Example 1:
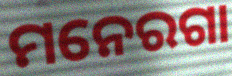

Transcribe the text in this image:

ମନେରଗା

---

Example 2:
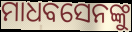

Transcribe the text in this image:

ମାଧବସେନଙ୍କୁ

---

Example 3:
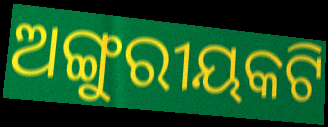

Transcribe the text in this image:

ଅଙ୍ଗୁରୀୟକଟି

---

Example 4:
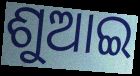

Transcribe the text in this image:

ଶୁଆଇ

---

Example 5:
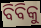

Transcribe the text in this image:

ବିବିକୁ